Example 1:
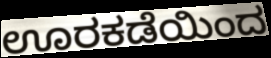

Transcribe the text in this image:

ಊರಕಡೆಯಿಂದ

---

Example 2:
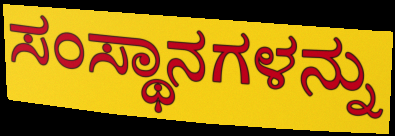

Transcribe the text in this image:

ಸಂಸ್ಥಾನಗಳನ್ನು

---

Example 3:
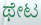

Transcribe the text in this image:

ಥೇಟ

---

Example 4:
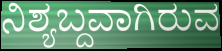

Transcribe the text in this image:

ನಿಶ್ಯಬ್ದವಾಗಿರುವ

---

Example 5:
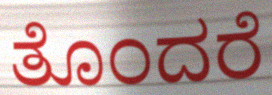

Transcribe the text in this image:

ತೊಂದರೆ